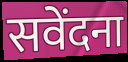
सवेंदना